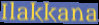
Ilakkana